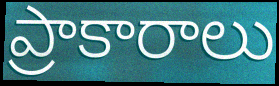
ప్రాకారాలు